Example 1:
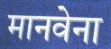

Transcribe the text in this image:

मानवेना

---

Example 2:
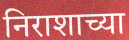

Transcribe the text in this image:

निराशाच्या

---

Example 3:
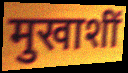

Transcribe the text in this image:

मुखाशीं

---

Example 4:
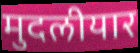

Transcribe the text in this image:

मुदलीयार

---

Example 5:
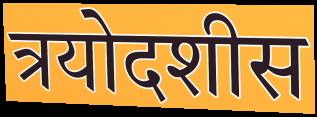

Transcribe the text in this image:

त्रयोदशीस